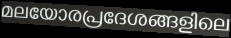
മലയോരപ്രദേശങ്ങളിലെ